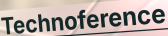
Technoference